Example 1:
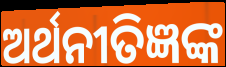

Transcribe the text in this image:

ଅର୍ଥନୀତିଜ୍ଞଙ୍କ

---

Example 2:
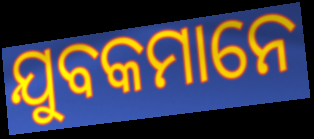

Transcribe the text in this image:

ଯୁବକମାନେ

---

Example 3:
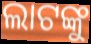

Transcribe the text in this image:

ଲାଟଙ୍କୁ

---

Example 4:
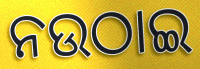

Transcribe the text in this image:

ନଉଠାଇ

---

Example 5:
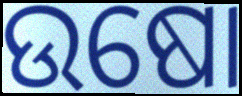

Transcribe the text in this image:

ଉଷୋ